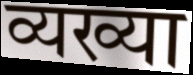
व्यख्या